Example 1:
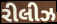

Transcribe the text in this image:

રીલીઝ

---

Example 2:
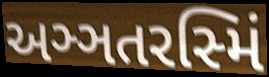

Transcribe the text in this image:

અઞ્ઞતરસ્મિં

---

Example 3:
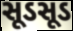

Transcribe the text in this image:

સૂડસૂડ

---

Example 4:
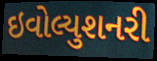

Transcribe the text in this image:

ઇવોલ્યુશનરી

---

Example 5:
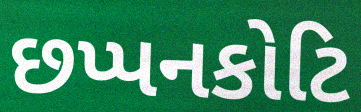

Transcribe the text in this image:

છપ્પનકોટિ